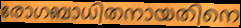
രോഗബാധിതനായതിനെ